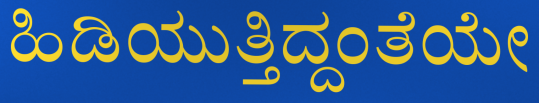
ಹಿಡಿಯುತ್ತಿದ್ದಂತೆಯೇ